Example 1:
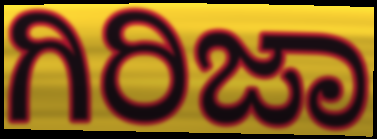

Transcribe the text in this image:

ಗಿರಿಜಾ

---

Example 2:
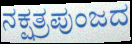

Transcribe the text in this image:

ನಕ್ಷತ್ರಪುಂಜದ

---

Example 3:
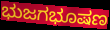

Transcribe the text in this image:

ಭುಜಗಭೂಷಣ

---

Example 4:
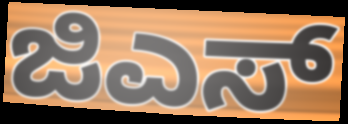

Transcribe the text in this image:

ಜಿಎಸ್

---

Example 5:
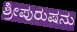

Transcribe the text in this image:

ಶ್ರೀಪುರುಷನು